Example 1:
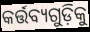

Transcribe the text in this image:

କର୍ତ୍ତବ୍ୟଗୁଡ଼ିକୁ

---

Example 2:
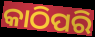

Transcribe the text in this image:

କାଠିପରି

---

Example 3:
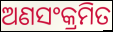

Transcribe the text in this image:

ଅଣସଂକ୍ରମିତ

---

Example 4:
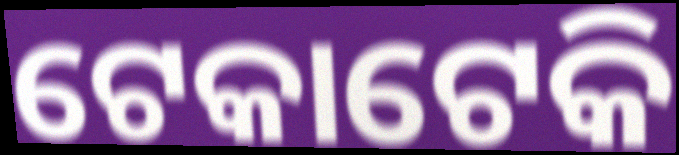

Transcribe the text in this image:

ଟେକାଟେକି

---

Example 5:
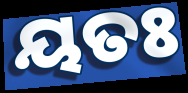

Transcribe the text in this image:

ୟତଃ